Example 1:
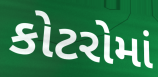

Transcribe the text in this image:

કોટરોમાં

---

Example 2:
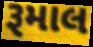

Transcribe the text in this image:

રૂમાલ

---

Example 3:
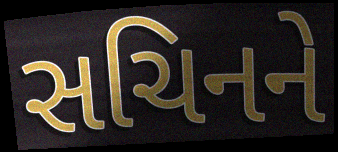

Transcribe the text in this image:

સચિનને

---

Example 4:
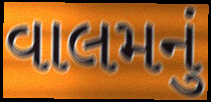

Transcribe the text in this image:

વાલમનું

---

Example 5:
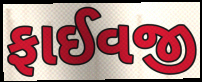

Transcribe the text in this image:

ફાઈવજી